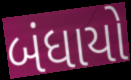
બંધાયો